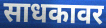
साधकावर